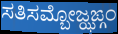
ಸತಿಸಮ್ಬೋಜ್ಝಙ್ಗಂ